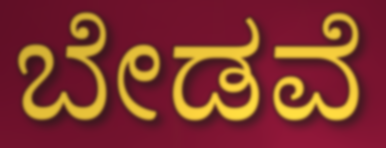
ಬೇಡವೆ